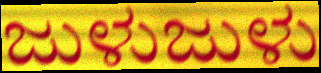
ಜುಳುಜುಳು